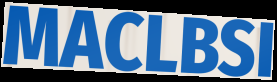
MACLBSI